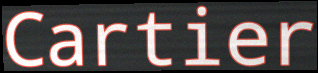
Cartier